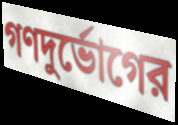
গণদুর্ভোগের